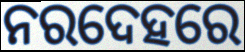
ନରଦେହରେ